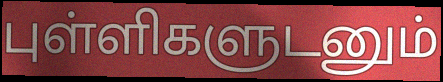
புள்ளிகளுடனும்